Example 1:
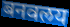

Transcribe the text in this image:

बनवलय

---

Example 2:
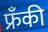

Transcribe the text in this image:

फ्रँकी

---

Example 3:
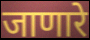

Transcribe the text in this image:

जाणारे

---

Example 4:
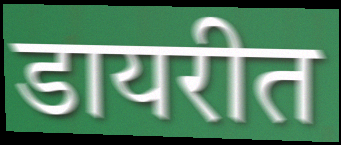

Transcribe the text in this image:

डायरीत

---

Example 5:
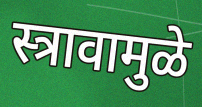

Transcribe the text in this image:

स्त्रावामुळे